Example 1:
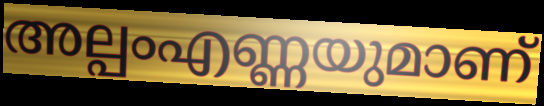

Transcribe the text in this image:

അല്പംഎണ്ണയുമാണ്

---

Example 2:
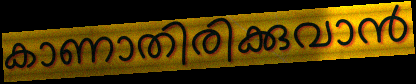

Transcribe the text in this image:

കാണാതിരിക്കുവാൻ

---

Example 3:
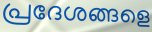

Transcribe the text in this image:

പ്രദേശങ്ങളെ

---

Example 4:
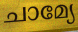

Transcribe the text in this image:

ചാമ്യേ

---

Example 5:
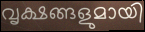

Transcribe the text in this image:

വൃക്ഷങ്ങളുമായി